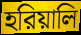
হরিয়ালি